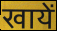
खायें